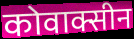
कोवाक्सीन